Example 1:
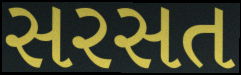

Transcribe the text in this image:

સરસત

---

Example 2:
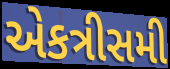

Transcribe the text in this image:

એકત્રીસમી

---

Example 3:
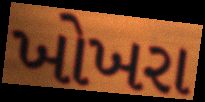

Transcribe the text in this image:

ખોખરા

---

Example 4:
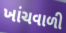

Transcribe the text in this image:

ખાંચવાળી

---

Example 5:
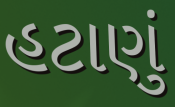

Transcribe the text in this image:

હટાણું